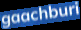
gaachburi